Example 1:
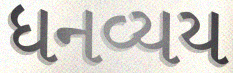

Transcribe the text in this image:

ધનવ્યય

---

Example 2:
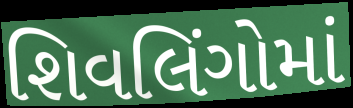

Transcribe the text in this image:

શિવલિંગોમાં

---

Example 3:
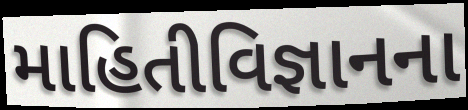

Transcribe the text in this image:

માહિતીવિજ્ઞાનના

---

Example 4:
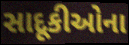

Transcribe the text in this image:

સાદૂકીઓના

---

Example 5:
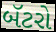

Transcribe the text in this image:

બૅટરો